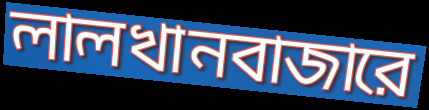
লালখানবাজারে